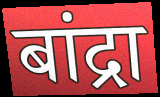
बांद्रा